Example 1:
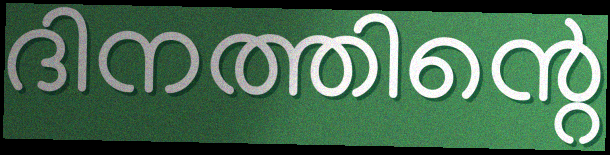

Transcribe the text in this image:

ദിനത്തിന്റെ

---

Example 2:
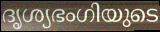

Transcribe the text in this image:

ദൃശ്യഭംഗിയുടെ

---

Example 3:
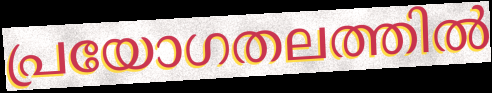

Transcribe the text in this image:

പ്രയോഗതലത്തിൽ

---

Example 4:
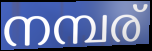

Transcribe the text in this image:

നമ്പര്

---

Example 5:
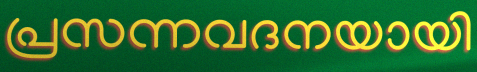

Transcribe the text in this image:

പ്രസന്നവദനയായി